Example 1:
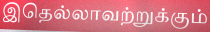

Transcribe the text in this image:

இதெல்லாவற்றுக்கும்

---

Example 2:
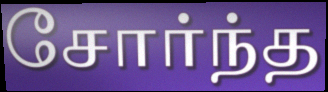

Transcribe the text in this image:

சோர்ந்த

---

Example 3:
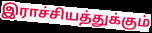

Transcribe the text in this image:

இராச்சியத்துக்கும்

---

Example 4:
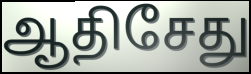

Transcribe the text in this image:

ஆதிசேது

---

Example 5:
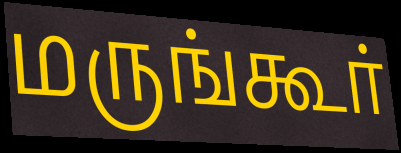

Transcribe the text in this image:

மருங்கூர்